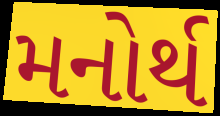
મનોર્થ